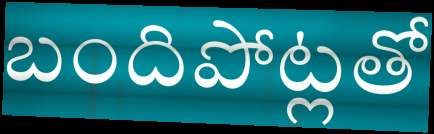
బందిపోట్లతో